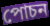
পোচন